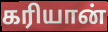
கரியான்